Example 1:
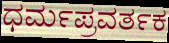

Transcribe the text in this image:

ಧರ್ಮಪ್ರವರ್ತಕ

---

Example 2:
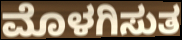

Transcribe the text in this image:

ಮೊಳಗಿಸುತ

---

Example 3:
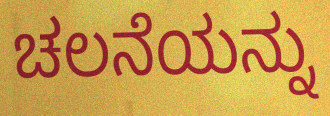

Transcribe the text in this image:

ಚಲನೆಯನ್ನು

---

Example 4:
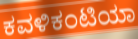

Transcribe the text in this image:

ಕವಳಿಕಂಟಿಯಾ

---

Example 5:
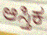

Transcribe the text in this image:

ಆಸ್ತಿಕ